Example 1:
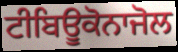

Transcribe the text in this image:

ਟੀਬਿਊਕੋਨਾਜੋਲ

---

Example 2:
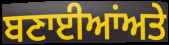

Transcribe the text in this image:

ਬਣਾਈਆਂਅਤੇ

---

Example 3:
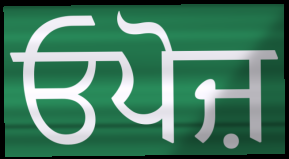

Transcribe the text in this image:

ਓਪੋਜ਼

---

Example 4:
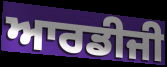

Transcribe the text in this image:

ਆਰਡੀਜੀ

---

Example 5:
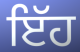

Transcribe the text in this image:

ਇੱਹ